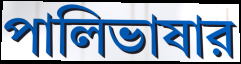
পালিভাষার